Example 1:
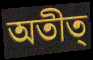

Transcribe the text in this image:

অতীত্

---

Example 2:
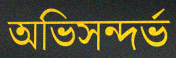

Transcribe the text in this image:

অভিসন্দর্ভ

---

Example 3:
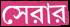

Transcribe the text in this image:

সেরার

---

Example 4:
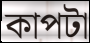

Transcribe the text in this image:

কাপটা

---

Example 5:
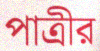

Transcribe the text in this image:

পাত্রীর